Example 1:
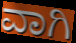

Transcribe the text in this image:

ವಾಗಿ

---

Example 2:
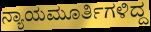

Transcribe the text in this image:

ನ್ಯಾಯಮೂರ್ತಿಗಳಿದ್ದ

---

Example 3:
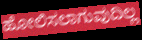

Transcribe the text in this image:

ಹೋಲಿಸಲಾಗುವುದಿಲ್ಲ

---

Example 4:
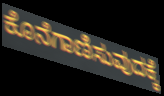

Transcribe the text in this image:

ಕೊನೆಗಾಣಿಸುವುದಕ್ಕೆ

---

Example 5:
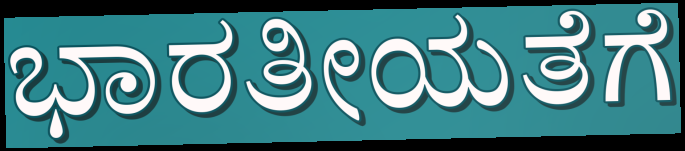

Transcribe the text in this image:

ಭಾರತೀಯತೆಗೆ